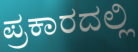
ಪ್ರಕಾರದಲ್ಲಿ